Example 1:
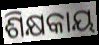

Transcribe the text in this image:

ଶିକ୍ଷକାୟ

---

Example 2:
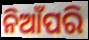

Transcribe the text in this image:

ନିଆଁପରି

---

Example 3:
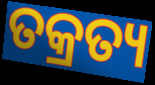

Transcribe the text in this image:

ତକ୍ରତ୍ୟ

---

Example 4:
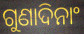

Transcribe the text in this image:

ଗୁଣାଦିନାଂ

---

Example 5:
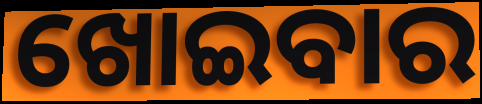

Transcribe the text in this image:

ଖୋଇବାର